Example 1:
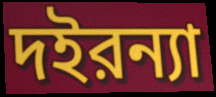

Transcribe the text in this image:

দইরন্যা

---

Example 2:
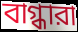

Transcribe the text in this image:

বাগ্ধারা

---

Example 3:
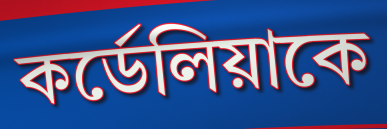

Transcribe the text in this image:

কর্ডেলিয়াকে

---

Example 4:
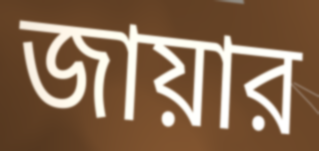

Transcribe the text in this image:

জায়ার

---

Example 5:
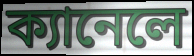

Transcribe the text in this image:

ক্যানেলে